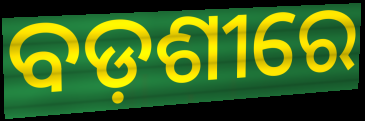
ବଡ଼ଶୀରେ